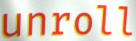
unroll